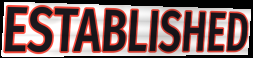
ESTABLISHED